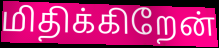
மிதிக்கிறேன்